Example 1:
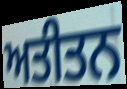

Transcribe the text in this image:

ਅਤੀਤਨ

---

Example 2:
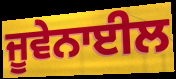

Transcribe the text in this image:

ਜੂਵੇਨਾਈਲ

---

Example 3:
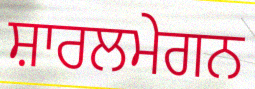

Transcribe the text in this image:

ਸ਼ਾਰਲਮੇਗਨ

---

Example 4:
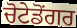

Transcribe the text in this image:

ਚੋਟੇਡੋਂਗਰ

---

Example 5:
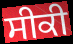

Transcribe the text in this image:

ਸੀਕੀ